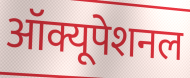
ऑक्यूपेशनल